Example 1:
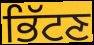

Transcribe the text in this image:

ਭਿੱਟਣ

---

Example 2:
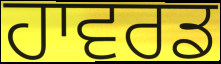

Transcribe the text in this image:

ਹਾਵਰਡ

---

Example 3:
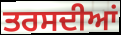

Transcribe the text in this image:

ਤਰਸਦੀਆਂ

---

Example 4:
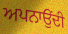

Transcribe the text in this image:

ਅਪਨਾਉਂਦੀ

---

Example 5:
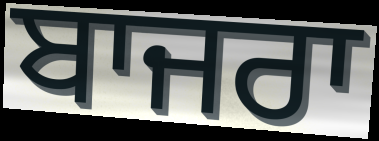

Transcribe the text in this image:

ਬਾਜਰਾ